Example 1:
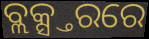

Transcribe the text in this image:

ବ୍ଲକ୍ସ୍ତରରେ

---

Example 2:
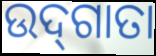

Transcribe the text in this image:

ଉଦ୍‌ଗାତା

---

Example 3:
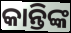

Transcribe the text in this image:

କାନ୍ତିଙ୍କ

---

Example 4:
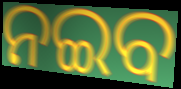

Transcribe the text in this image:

ନଇବ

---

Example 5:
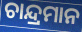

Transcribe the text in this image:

ଚାନ୍ଦ୍ରମାନ